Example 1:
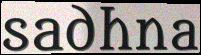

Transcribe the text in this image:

sadhna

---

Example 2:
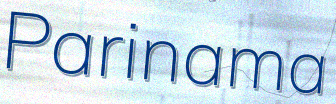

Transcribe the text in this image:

Parinama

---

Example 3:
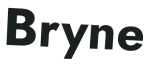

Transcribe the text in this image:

Bryne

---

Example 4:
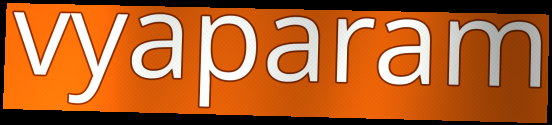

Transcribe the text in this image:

vyaparam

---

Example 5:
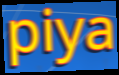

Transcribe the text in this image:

piya